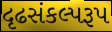
દૃઢસંકલ્પરૂપ